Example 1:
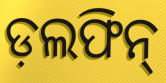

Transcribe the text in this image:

ଡ଼ଲଫିନ୍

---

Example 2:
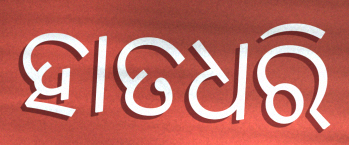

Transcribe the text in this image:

ହାତଧରି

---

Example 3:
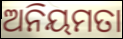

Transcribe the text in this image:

ଅନିୟମତା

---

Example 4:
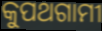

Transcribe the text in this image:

କୁପଥଗାମୀ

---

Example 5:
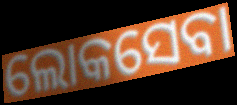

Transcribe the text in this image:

ଲୋକସେବା